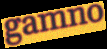
gamno